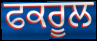
ਫਕਰੂਲ